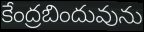
కేంద్రబిందువును